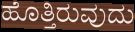
ಹೊತ್ತಿರುವುದು